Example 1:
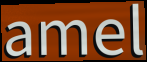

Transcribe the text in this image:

amel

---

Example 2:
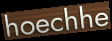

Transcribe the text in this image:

hoechhe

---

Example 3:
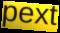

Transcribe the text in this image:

pext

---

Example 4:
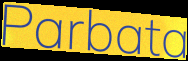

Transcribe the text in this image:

Parbata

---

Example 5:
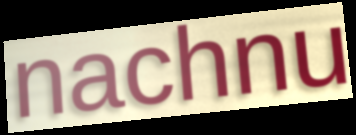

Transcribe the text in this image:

nachnu